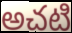
అచటి